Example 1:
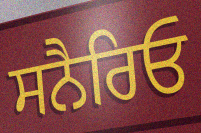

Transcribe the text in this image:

ਸਨੈਰਿਓ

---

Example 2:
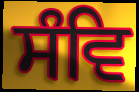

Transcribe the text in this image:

ਸੰਵਿ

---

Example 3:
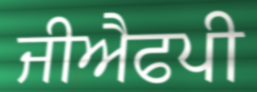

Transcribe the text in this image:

ਜੀਐਫਪੀ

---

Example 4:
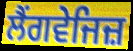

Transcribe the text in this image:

ਲੈਂਗਵੇਜਿਜ਼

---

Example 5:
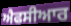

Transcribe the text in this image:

ਐਫਸੀਆਰ